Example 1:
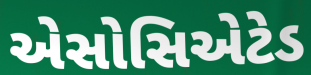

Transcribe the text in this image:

એસોસિએટેડ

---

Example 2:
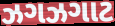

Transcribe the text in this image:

ઝગઝગાટ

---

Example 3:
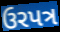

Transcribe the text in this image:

ઉરપત્ર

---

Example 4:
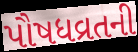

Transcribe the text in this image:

પૌષધવ્રતની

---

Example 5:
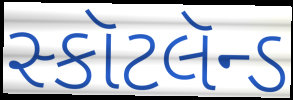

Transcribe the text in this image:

સ્કૉટલૅન્ડ